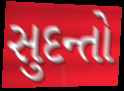
સુદન્તો